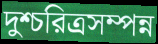
দুশ্চরিত্রসম্পন্ন